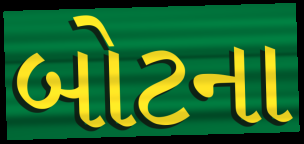
બોટના